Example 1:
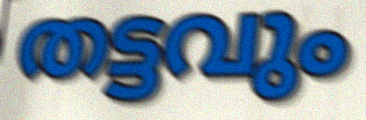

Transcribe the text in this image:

തട്ടവും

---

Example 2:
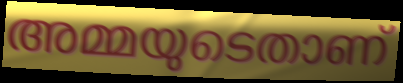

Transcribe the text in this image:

അമ്മയുടെതാണ്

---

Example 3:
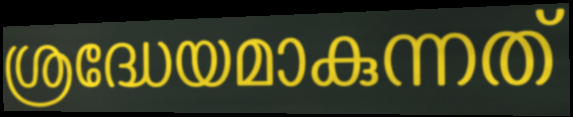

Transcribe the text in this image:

ശ്രദ്ധേയമാകുന്നത്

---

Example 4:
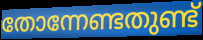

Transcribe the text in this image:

തോന്നേണ്ടതുണ്ട്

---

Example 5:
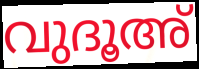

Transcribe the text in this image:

വുദൂഅ്